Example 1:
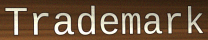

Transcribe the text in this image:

Trademark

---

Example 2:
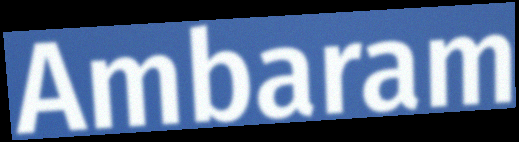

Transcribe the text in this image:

Ambaram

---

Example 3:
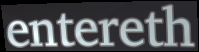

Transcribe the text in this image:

entereth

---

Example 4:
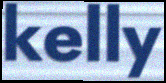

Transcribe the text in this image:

kelly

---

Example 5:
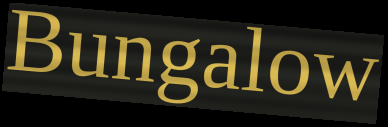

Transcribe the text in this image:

Bungalow